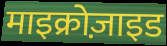
माइक्रोज़ाइड